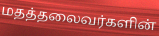
மதத்தலைவர்களின்